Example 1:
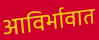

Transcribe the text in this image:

आविर्भावात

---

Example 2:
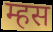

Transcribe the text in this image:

म्हस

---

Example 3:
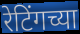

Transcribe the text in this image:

रेटिंगच्या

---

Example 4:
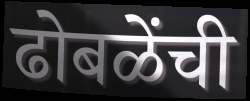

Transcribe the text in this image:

ढोबळेंची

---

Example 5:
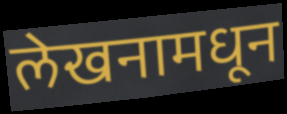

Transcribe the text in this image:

लेखनामधून